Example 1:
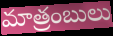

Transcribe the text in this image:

మాత్రంబులు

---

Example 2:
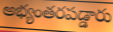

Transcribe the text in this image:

అభ్యంతరపడ్డారు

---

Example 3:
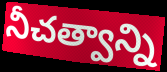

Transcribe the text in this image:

నీచత్వాన్ని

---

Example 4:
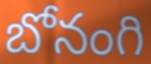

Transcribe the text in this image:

బోనంగి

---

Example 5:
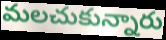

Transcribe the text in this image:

మలచుకున్నారు